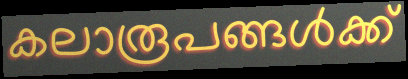
കലാരൂപങ്ങൾക്ക്